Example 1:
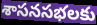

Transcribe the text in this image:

శాసనసభలకు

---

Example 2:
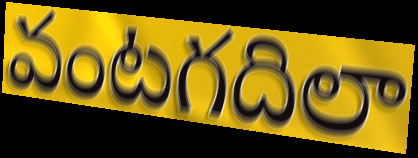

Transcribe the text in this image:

వంటగదిలా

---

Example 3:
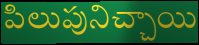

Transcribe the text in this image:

పిలుపునిచ్చాయి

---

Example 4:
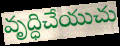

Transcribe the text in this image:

వృద్ధిచేయుచు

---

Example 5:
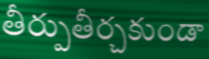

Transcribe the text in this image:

తీర్పుతీర్చకుండా